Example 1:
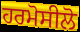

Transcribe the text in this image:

ਹਰਮੋਸੀਲੋ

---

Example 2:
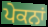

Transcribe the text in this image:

ਪੇਕਨਾਂ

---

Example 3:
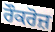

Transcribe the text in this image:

ਰੌਕਰੋਜ਼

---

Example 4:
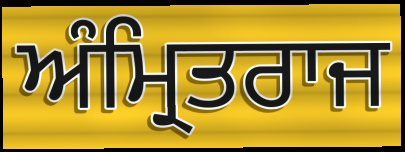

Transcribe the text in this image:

ਅੰਮ੍ਰਿਤਰਾਜ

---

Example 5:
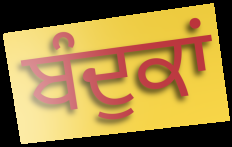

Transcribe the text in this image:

ਬੰਦੁਕਾਂ